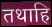
तथाहि